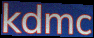
kdmc